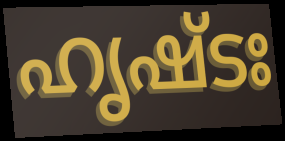
ഹൃഷ്ടഃ